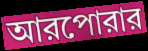
আরপোরার